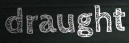
draught